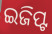
ଇଜିପ୍ଟ